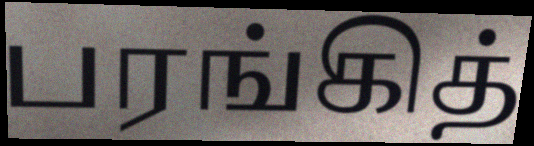
பரங்கித்